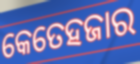
କେତେହଜାର